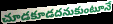
చూడకూడదనుకుంటూనే